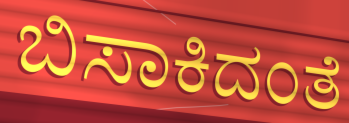
ಬಿಸಾಕಿದಂತೆ